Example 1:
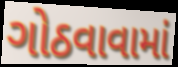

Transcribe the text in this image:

ગોઠવાવામાં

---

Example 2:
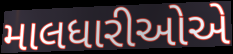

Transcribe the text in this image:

માલધારીઓએ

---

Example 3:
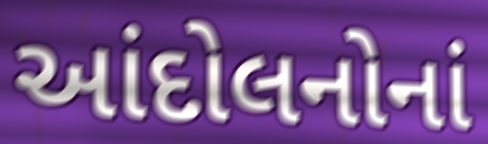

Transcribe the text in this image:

આંદોલનોનાં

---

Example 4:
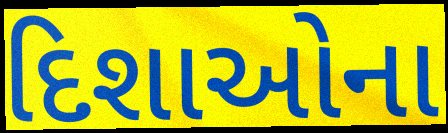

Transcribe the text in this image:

દિશાઓના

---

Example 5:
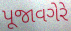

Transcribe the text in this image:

પૂજાવગેરે